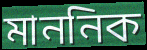
মাননিক